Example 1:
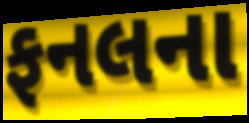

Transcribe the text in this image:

ફનલના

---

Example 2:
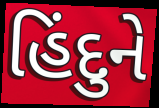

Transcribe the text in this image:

હિંદુને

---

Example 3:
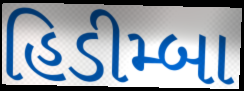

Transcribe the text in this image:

હિડીમ્બા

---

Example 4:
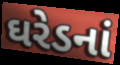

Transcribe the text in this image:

ઘરેડનાં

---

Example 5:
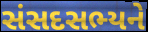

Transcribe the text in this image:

સંસદસભ્યને